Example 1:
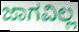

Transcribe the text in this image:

ಜಾಗವಿಲ್ಲ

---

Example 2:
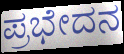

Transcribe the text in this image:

ಪ್ರಭೇದನ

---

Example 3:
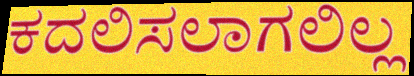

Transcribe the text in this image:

ಕದಲಿಸಲಾಗಲಿಲ್ಲ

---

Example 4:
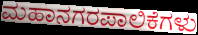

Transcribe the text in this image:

ಮಹಾನಗರಪಾಲಿಕೆಗಳು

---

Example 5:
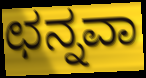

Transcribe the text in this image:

ಛನ್ನವಾ